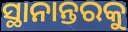
ସ୍ଥାନାନ୍ତରକୁ